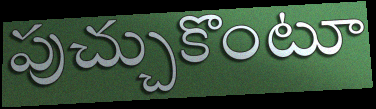
పుచ్చుకొంటూ